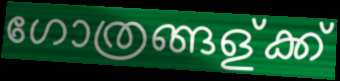
ഗോത്രങ്ങള്ക്ക്